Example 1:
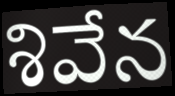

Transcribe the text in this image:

శివేన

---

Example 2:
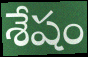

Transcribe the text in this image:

శేషం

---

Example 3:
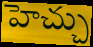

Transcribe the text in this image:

హెచ్చు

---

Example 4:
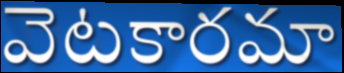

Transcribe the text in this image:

వెటకారమా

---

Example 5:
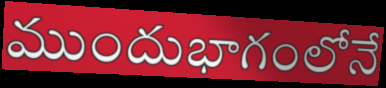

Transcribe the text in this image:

ముందుభాగంలోనే